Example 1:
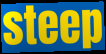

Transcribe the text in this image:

steep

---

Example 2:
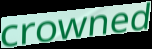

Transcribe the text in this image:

crowned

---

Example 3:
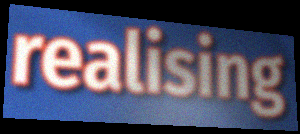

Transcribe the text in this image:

realising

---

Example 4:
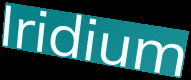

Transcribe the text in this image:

Iridium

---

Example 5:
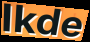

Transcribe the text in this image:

Ikde